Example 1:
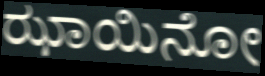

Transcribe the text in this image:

ಝಾಯಿನೋ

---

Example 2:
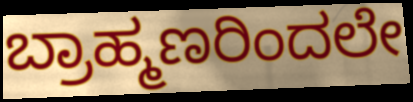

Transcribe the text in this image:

ಬ್ರಾಹ್ಮಣರಿಂದಲೇ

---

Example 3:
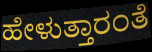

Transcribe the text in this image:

ಹೇಳುತ್ತಾರಂತೆ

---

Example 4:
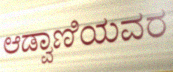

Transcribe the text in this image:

ಆಡ್ವಾಣಿಯವರ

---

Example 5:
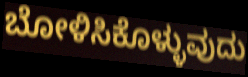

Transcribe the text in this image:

ಬೋಳಿಸಿಕೊಳ್ಳುವುದು